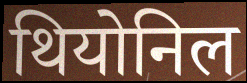
थियोनिल